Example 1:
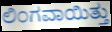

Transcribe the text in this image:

ಲಿಂಗವಾಯಿತ್ತು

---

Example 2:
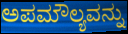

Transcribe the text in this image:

ಅಪಮೌಲ್ಯವನ್ನು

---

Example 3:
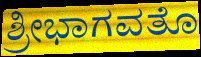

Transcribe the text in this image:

ಶ್ರೀಭಾಗವತೊ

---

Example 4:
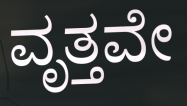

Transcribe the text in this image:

ವೃತ್ತವೇ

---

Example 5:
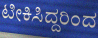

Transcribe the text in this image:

ಟೀಕಿಸಿದ್ದರಿಂದ